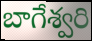
బాగేశ్వరి